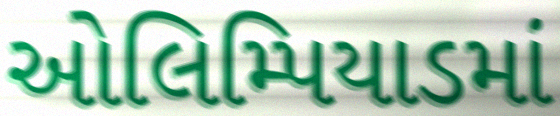
ઓલિમ્પિયાડમાં